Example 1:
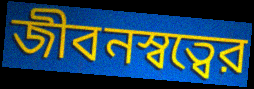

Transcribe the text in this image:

জীবনস্বত্বের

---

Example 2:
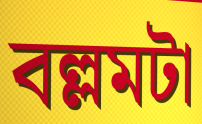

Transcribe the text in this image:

বল্লমটা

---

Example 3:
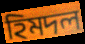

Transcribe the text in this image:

হিমদল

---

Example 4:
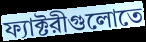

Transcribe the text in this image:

ফ্যাক্টরীগুলোতে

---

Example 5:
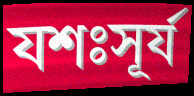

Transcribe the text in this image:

যশঃসূর্য